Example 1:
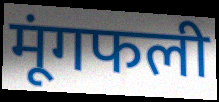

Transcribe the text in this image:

मूंगफली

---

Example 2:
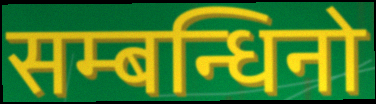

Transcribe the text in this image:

सम्बन्धिनो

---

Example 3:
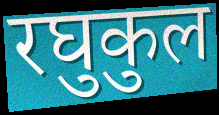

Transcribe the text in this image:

रघुकुल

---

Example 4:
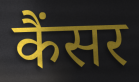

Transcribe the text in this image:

कैंसर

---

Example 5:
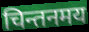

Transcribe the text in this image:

चिन्तनमय